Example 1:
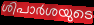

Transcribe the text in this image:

ശിപാർശയുടെ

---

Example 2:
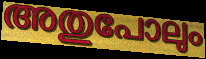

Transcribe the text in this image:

അതുപോലും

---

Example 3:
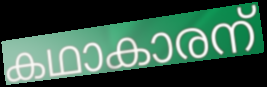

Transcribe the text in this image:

കഥാകാരന്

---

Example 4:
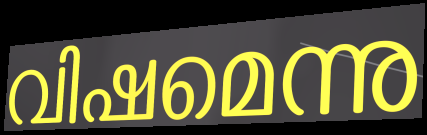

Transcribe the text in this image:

വിഷമെന്നു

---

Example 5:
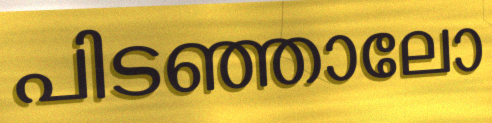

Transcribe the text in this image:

പിടഞ്ഞാലോ